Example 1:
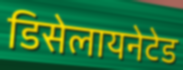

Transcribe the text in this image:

डिसेलायनेटेड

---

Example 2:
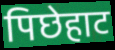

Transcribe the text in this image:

पिछेहाट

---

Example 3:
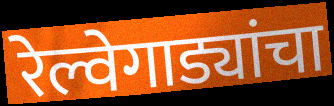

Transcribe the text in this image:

रेल्वेगाड्यांचा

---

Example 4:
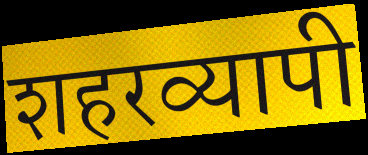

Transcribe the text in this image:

शहरव्यापी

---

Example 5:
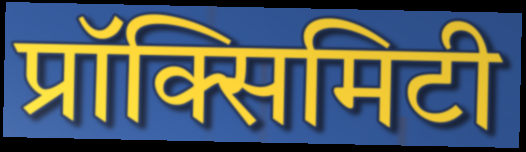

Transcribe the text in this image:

प्रॉक्सिमिटी